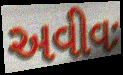
અવીવઃ